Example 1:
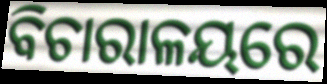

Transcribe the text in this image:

ବିଚାରାଳୟରେ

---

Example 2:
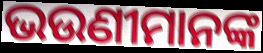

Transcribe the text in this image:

ଭଉଣୀମାନଙ୍କ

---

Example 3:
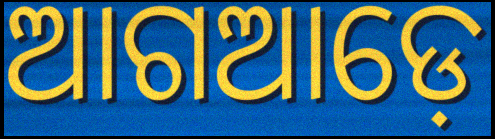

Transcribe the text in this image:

ଆଗଆଡ଼େ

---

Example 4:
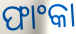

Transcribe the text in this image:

ଫାଂକା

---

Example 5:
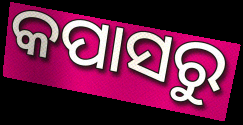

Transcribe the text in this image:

କପାସରୁ